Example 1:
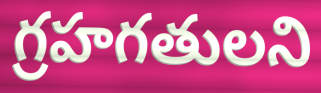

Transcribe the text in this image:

గ్రహగతులని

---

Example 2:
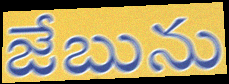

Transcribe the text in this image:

జేబును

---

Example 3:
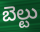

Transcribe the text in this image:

బెల్టు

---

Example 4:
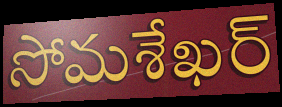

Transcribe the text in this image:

సోమశేఖర్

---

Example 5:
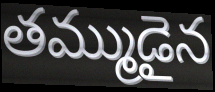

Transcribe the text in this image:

తమ్ముడైన